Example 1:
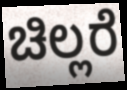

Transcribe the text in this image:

ಚಿಲ್ಲರೆ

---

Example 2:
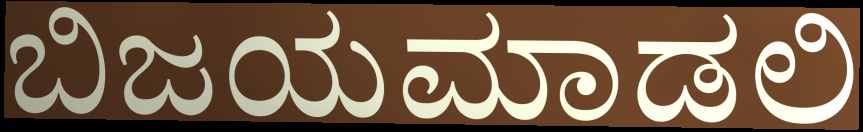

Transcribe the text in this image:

ಬಿಜಯಮಾಡಲಿ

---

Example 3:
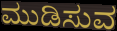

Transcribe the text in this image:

ಮುಡಿಸುವ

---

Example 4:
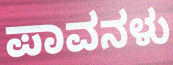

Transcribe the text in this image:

ಪಾವನಳು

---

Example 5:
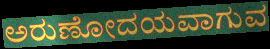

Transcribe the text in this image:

ಅರುಣೋದಯವಾಗುವ